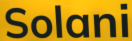
Solani